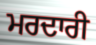
ਮਰਦਾਰੀ